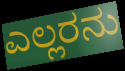
ಎಲ್ಲರನು